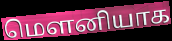
மெளனியாக